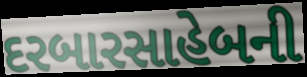
દરબારસાહેબની